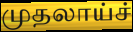
முதலாய்ச்